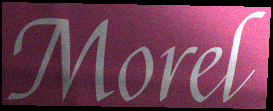
Morel